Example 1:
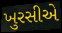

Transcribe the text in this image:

ખુરસીએ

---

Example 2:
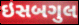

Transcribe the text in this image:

ઇસબગુલ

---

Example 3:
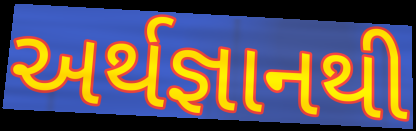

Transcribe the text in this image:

અર્થજ્ઞાનથી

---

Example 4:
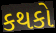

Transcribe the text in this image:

કથકો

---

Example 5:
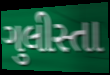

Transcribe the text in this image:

ગુલીસ્તા